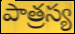
పాత్రస్య